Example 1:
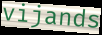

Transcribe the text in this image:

vijands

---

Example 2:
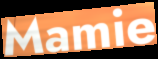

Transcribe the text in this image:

Mamie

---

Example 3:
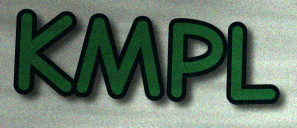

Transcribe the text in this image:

KMPL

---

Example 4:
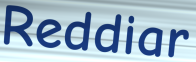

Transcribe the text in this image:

Reddiar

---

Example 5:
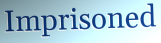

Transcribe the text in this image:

Imprisoned